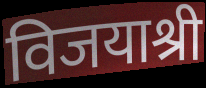
विजयाश्री